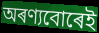
অৰণ্যবোৰেই